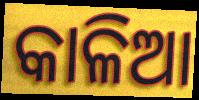
କାଳିଆ